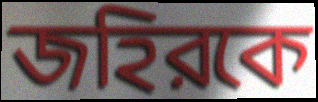
জহিরকে